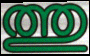
ത്തു